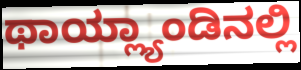
ಥಾಯ್ಲ್ಯಾಂಡಿನಲ್ಲಿ